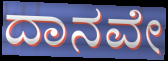
ದಾನವೇ